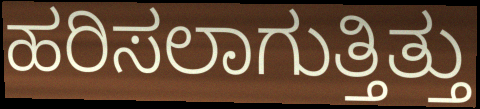
ಹರಿಸಲಾಗುತ್ತಿತ್ತು